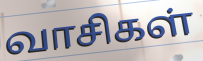
வாசிகள்